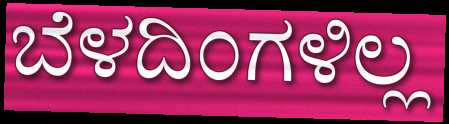
ಬೆಳದಿಂಗಳಿಲ್ಲ